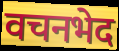
वचनभेद